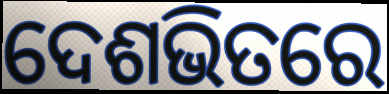
ଦେଶଭିତରେ